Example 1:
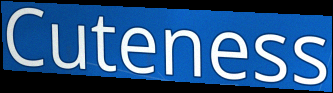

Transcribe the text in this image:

Cuteness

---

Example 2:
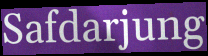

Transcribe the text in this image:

Safdarjung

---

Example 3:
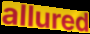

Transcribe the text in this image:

allured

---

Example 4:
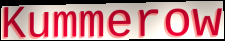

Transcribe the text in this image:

Kummerow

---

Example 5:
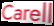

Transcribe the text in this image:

Carell